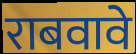
राबवावे